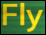
Fly